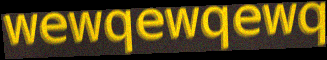
wewqewqewq